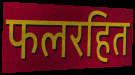
फलरहित